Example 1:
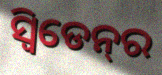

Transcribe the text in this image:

ସ୍ୱିଡେନ୍‌ର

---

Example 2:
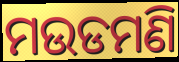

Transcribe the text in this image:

ମଉଡମଣି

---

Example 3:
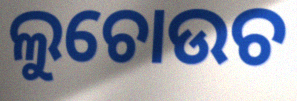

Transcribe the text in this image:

ଲୁଚୋଉଚ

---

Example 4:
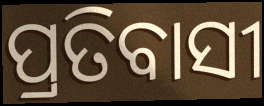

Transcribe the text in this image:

ପ୍ରତିବାସୀ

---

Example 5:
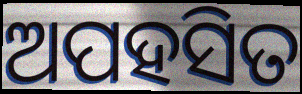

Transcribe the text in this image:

ଅପହସିତ